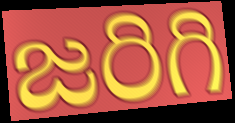
జరిగి